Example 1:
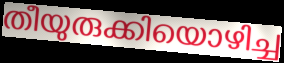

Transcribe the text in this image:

തീയുരുക്കിയൊഴിച്ച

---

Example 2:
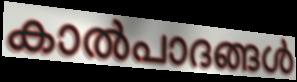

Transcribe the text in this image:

കാൽപാദങ്ങൾ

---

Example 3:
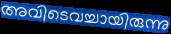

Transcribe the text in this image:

അവിടെവച്ചായിരുന്നു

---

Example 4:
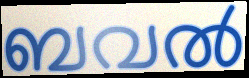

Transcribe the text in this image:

ബവൽ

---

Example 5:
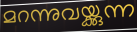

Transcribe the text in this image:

മറന്നുവയ്ക്കുന്ന